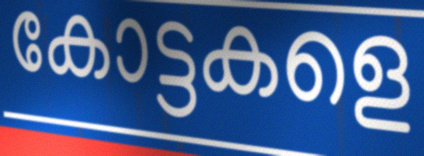
കോട്ടകളെ